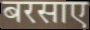
बरसाए